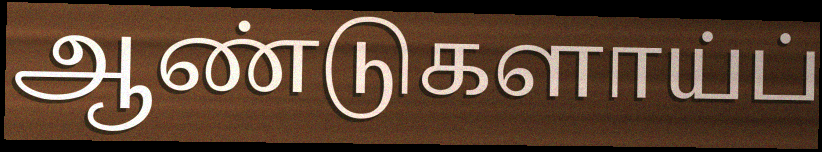
ஆண்டுகளாய்ப்